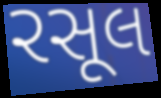
રસૂલ